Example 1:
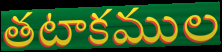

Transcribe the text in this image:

తటాకముల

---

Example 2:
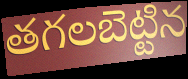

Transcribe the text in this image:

తగలబెట్టిన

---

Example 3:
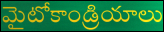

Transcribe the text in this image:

మైటోకాండ్రియాలు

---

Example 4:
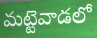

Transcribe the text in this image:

మట్టెవాడలో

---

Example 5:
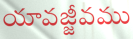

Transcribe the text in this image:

యావజ్జీవము